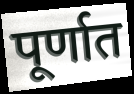
पूर्णात